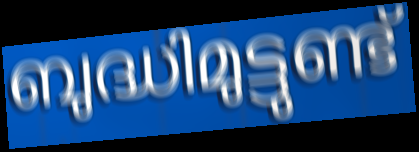
ബുദ്ധിമുട്ടുണ്ട്